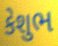
કેશુભ